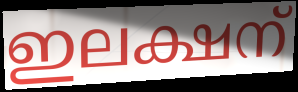
ഇലക്ഷന്